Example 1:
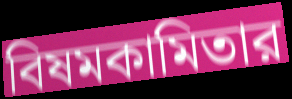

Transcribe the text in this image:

বিষমকামিতার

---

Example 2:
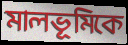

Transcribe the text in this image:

মালভূমিকে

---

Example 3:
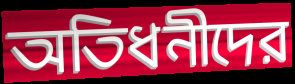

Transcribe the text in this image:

অতিধনীদের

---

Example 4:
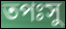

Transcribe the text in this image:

তপঃসু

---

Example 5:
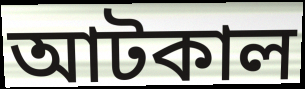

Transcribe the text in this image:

আটকাল